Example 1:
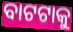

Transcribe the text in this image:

ବାଟଟାକୁ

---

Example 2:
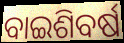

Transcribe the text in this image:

ବାଇଶିବର୍ଷ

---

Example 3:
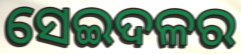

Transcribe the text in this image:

ସେଇଦଳର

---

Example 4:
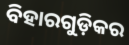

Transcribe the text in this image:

ବିହାରଗୁଡ଼ିକର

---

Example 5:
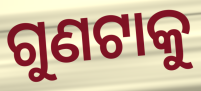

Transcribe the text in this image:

ଗୁଣଟାକୁ